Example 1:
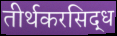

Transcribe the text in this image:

तीर्थकरसिद्ध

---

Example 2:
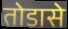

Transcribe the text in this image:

तोडासे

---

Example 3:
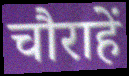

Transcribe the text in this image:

चौराहें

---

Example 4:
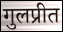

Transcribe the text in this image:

गुलप्रीत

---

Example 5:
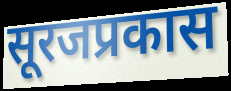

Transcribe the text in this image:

सूरजप्रकास